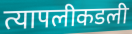
त्यापलीकडली